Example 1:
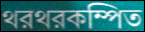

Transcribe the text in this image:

থরথরকম্পিত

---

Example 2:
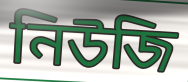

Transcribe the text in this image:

নিউজি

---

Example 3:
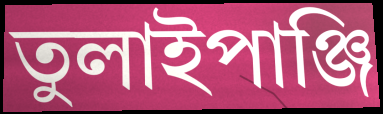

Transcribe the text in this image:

তুলাইপাঞ্জি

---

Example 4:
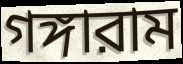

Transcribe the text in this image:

গঙ্গারাম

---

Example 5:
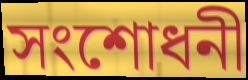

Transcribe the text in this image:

সংশোধনী